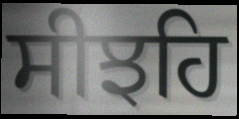
ਸੀਝਹਿ